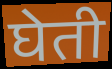
घेती